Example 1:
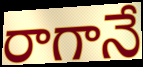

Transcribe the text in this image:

రాగానే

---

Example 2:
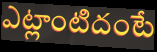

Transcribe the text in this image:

ఎట్లాంటిదంటే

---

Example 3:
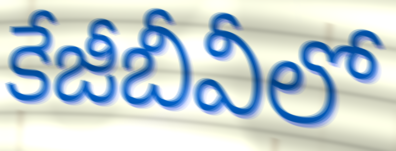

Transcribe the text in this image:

కేజీబీవీలో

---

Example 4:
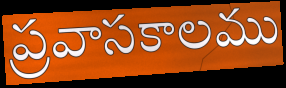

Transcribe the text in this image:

ప్రవాసకాలము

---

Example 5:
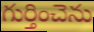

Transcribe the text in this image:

గుర్తించెను